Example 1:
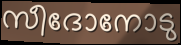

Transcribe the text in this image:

സീദോനോടു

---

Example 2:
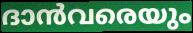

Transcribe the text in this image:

ദാൻവരെയും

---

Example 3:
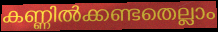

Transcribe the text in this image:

കണ്ണിൽക്കണ്ടതെല്ലാം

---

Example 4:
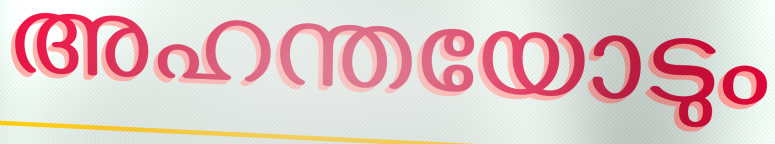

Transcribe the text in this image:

അഹന്തയോടും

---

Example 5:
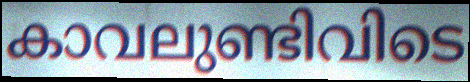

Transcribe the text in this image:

കാവലുണ്ടിവിടെ